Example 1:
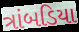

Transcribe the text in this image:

ત્રાંબડિયા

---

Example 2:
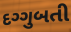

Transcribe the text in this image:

દગ્ગુબતી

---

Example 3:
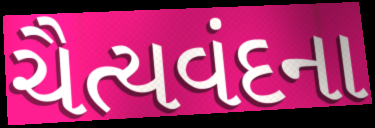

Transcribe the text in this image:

ચૈત્યવંદના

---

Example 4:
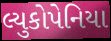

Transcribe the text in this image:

લ્યુકોપેનિયા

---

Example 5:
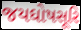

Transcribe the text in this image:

જયઘોષસૂરિ